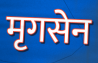
मृगसेन